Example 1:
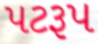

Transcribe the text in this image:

પટરૂપ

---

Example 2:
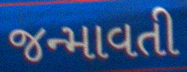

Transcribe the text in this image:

જન્માવતી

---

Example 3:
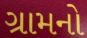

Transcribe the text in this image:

ગ્રામનો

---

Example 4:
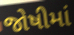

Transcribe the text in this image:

જોષીમાં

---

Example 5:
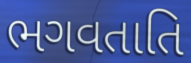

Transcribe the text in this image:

ભગવતાતિ